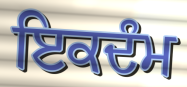
ਇਕਦੰਮ